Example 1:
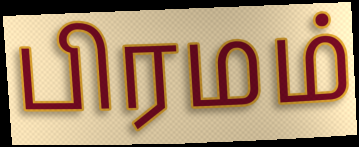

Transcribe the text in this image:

பிரமம்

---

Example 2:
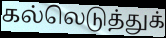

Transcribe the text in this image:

கல்லெடுத்துக்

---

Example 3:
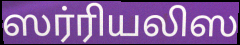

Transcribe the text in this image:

ஸர்ரியலிஸ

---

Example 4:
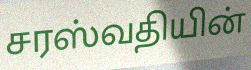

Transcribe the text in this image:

சரஸ்வதியின்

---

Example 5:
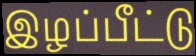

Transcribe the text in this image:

இழப்பீட்டு